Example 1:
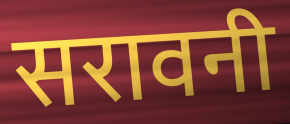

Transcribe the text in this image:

सरावनी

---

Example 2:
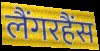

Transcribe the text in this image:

लैंगरहैंस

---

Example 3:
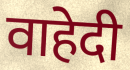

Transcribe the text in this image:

वाहेदी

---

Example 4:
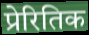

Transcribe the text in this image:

प्रेरितिक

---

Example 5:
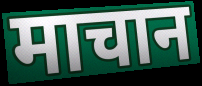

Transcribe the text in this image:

माचान